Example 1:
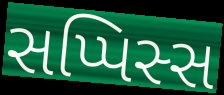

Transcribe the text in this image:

સપ્પિસ્સ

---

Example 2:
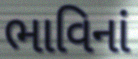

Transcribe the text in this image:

ભાવિનાં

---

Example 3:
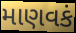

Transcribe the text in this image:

માણવકં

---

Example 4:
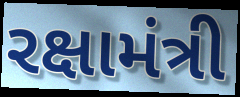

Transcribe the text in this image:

રક્ષામંત્રી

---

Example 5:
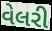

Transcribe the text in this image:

વેલરી